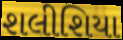
શલીશિયા